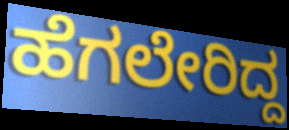
ಹೆಗಲೇರಿದ್ದ